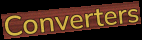
Converters